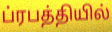
ப்ரபத்தியில்